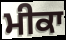
ਮੀਕਾ